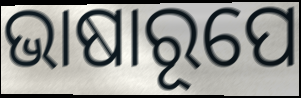
ଭାଷାରୂପେ